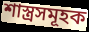
শাস্ত্ৰসমূহক